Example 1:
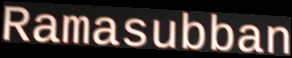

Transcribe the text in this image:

Ramasubban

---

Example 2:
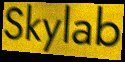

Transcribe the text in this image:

Skylab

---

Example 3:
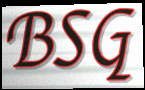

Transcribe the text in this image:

BSG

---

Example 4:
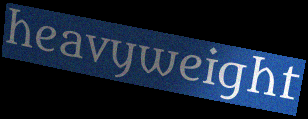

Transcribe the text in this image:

heavyweight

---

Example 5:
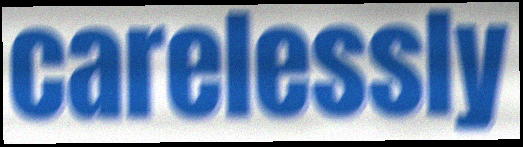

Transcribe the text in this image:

carelessly